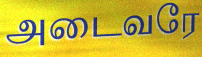
அடைவரே